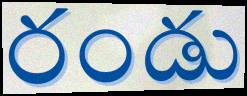
రండు